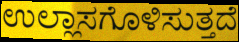
ಉಲ್ಲಾಸಗೊಳಿಸುತ್ತದೆ